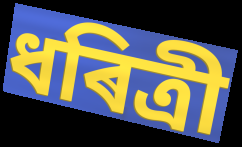
ধৰিত্ৰী